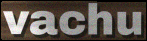
vachu